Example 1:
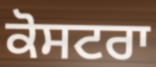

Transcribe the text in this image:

ਕੋਸਟਰਾ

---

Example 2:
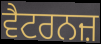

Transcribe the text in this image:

ਵੈਟਰਨਜ਼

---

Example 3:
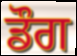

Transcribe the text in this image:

ਡੌਗ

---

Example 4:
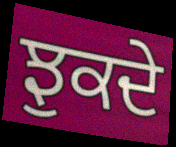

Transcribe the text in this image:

ਝੁਕਦੇ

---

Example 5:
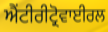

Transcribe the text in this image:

ਐਂਟੀਰੀਟ੍ਰੋਵਾਈਰਲ